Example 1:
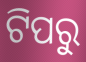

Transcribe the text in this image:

ଟିପରୁ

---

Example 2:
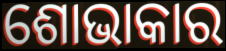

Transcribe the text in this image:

ଶୋଭାକାର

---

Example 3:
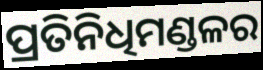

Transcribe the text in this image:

ପ୍ରତିନିଧିମଣ୍ଡଳର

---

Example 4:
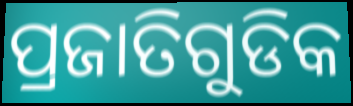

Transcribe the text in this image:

ପ୍ରଜାତିଗୁଡିକ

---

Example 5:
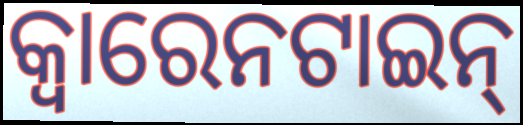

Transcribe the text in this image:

କ୍ୱାରେନଟାଇନ୍